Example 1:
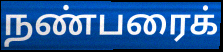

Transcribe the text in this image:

நண்பரைக்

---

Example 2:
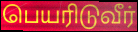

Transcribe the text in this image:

பெயரிடுவீர்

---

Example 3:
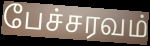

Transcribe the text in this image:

பேச்சரவம்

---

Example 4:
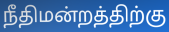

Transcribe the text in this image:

நீதிமன்றத்திற்கு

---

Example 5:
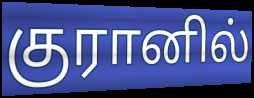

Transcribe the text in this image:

குரானில்